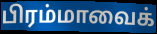
பிரம்மாவைக்